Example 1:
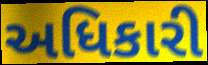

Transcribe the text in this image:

અધિકારી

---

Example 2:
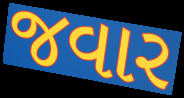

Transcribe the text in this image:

જવાર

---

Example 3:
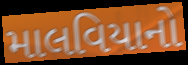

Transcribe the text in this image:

માલવિયાનો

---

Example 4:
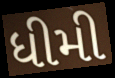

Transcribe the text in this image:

ધીમી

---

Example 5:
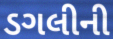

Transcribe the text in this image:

ડગલીની